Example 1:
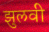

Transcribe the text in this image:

झुलवी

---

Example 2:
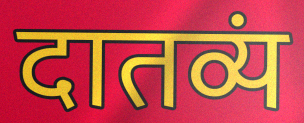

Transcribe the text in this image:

दातव्यं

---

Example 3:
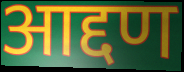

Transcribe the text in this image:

आद्दण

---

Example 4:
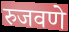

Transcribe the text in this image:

रुजवणे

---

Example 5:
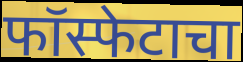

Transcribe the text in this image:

फॉस्फेटाचा